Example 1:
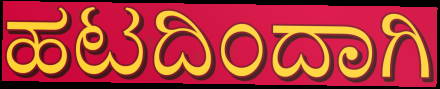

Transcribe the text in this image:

ಹಟದಿಂದಾಗಿ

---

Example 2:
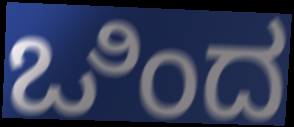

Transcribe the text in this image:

ಒಿಂದ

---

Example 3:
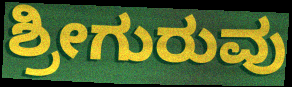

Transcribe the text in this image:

ಶ್ರೀಗುರುವು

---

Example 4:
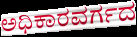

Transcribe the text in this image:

ಅಧಿಕಾರವರ್ಗದ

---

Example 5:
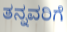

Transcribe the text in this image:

ತನ್ನವರಿಗೆ